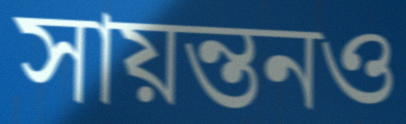
সায়ন্তনও